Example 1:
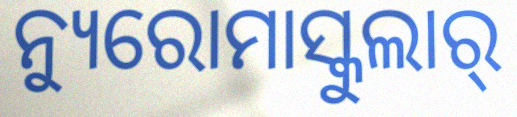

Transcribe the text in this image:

ନ୍ୟୁରୋମାସ୍କୁଲାର୍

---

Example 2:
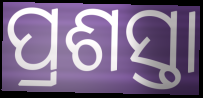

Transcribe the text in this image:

ପ୍ରଶସ୍ତା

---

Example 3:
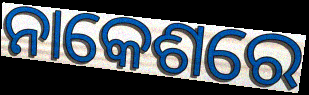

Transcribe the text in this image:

ନାକେଶରେ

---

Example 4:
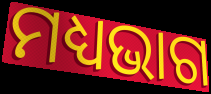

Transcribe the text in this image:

ମଧ୍ୟଭାଗ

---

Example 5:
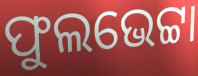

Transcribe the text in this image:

ଫୁଲଭେଟ୍ଟା